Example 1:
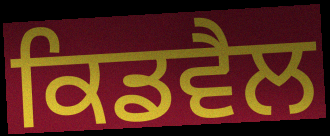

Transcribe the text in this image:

ਕਿਡਵੈਲ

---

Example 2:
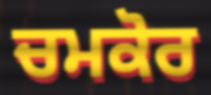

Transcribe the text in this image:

ਚਮਕੋਰ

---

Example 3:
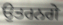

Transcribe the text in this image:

ਉਤਰਨਗੇ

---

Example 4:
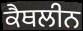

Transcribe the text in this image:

ਕੈਥਲੀਨ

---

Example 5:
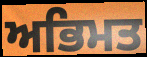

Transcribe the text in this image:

ਅਭਿਮਤ